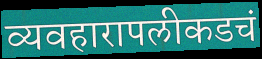
व्यवहारापलीकडचं